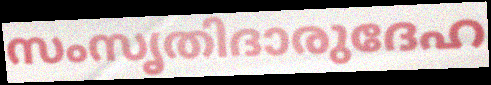
സംസൃതിദാരുദേഹ